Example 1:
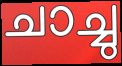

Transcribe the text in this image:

ചാച്ചു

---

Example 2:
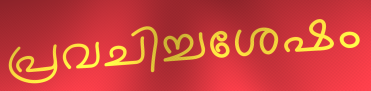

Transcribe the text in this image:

പ്രവചിച്ചശേഷം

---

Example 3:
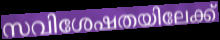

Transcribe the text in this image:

സവിശേഷതയിലേക്ക്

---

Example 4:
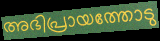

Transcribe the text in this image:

അഭിപ്രായത്തോടു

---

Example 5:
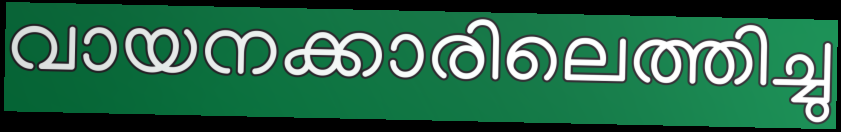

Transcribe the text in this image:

വായനക്കാരിലെത്തിച്ചു